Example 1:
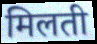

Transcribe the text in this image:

मिलती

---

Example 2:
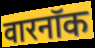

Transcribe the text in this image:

वारनॉक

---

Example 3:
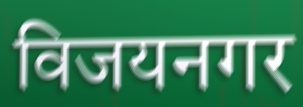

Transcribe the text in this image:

विजयनगर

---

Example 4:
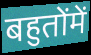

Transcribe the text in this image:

बहुतोंमें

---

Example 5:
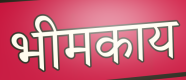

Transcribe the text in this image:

भीमकाय